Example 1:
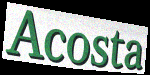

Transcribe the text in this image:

Acosta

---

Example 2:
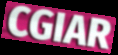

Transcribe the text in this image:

CGIAR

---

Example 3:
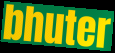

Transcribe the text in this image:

bhuter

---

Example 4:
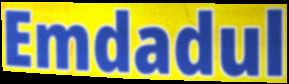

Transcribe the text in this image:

Emdadul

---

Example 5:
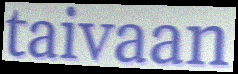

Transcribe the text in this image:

taivaan